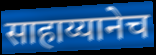
साहाय्यानेच